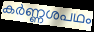
കർണ്ണശപഥം